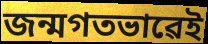
জন্মগতভাৱেই